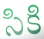
సికి